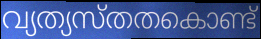
വ്യത്യസ്തതകൊണ്ട്